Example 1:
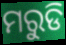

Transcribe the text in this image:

ମରୁଡି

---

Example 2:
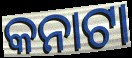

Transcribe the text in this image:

କନାଟା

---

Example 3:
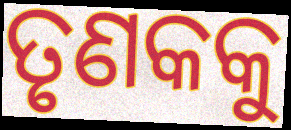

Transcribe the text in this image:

ତୃଣକକୁ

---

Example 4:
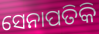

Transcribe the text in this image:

ସେନାପତିକି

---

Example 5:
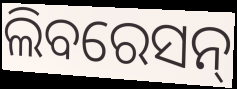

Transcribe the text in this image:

ଲିବରେସନ୍